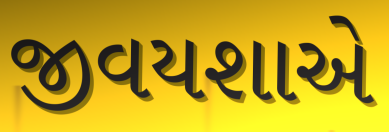
જીવયશાએ